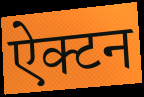
ऐक्टन